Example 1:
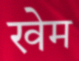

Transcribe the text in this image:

खेम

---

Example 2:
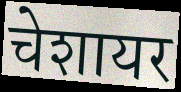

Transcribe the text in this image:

चेशायर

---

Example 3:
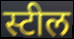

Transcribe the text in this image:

स्टील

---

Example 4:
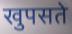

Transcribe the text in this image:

खुपसते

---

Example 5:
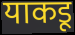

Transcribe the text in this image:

याकडू